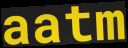
aatm